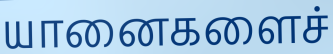
யானைகளைச்